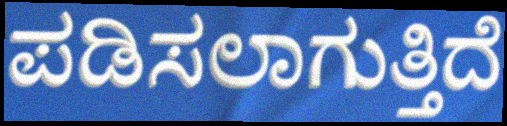
ಪಡಿಸಲಾಗುತ್ತಿದೆ